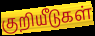
குறியீடுகள்